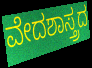
ವೇದಶಾಸ್ತ್ರದ